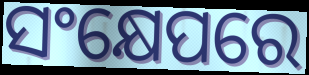
ସଂକ୍ଷେପରେ